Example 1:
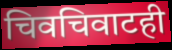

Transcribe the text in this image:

चिवचिवाटही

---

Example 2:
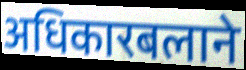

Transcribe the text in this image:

अधिकारबलाने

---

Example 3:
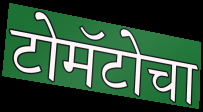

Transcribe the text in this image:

टोमॅटोचा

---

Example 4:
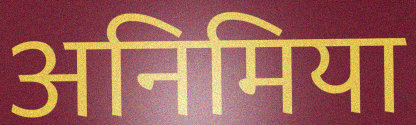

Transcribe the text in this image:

अनिमिया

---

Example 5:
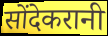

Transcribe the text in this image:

सोंदेकरानी